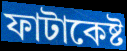
ফাটাকেষ্ট